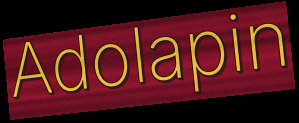
Adolapin